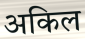
अकिल